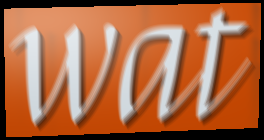
wat